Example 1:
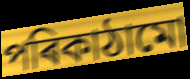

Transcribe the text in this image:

পৰিকাঠামো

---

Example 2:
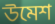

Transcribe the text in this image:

উমেশ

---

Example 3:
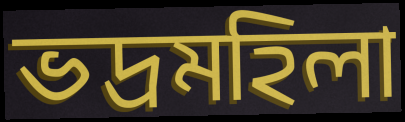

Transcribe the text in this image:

ভদ্ৰমহিলা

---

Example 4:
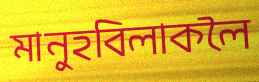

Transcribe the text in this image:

মানুহবিলাকলৈ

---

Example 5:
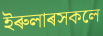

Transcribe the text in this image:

ইৰুলাৰসকলে